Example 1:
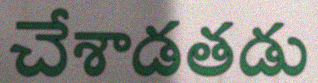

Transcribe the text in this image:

చేశాడతడు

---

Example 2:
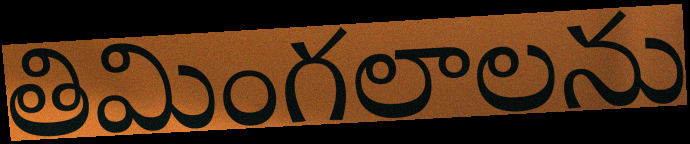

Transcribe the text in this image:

తిమింగలాలను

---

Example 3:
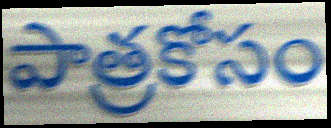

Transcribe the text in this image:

పాత్రకోసం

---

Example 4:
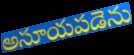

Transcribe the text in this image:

అసూయపడెను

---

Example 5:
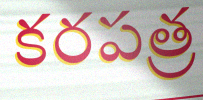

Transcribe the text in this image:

కరపత్ర